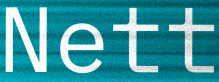
Nett